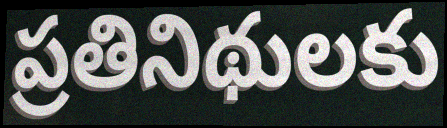
ప్రతినిథులకు